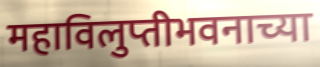
महाविलुप्तीभवनाच्या